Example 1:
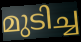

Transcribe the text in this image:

മുടിച്ച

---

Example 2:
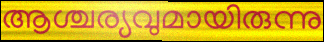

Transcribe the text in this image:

ആശ്ചര്യവുമായിരുന്നു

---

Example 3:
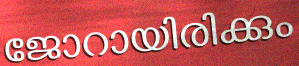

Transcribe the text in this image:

ജോറായിരിക്കും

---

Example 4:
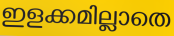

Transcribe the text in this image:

ഇളക്കമില്ലാതെ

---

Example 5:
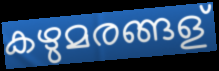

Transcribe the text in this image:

കഴുമരങ്ങള്